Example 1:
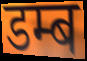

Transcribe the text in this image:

डम्ब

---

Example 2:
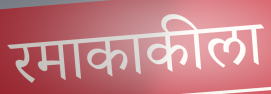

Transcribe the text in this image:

रमाकाकीला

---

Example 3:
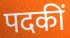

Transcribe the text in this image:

पदकीं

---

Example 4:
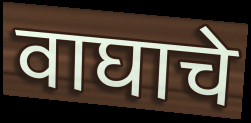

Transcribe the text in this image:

वाघाचे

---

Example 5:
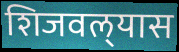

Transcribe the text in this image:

शिजवल्यास